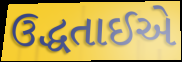
ઉદ્ધતાઈએ